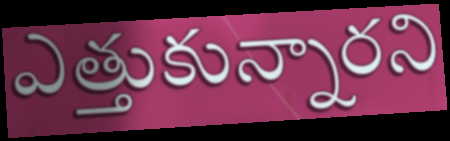
ఎత్తుకున్నారని